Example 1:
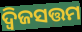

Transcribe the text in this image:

ଦ୍ୱିଜସତ୍ତମ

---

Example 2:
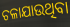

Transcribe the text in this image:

ଚଳାଯାଉଥିବା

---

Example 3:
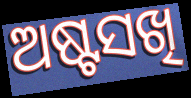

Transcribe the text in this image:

ଅଷ୍ଟସଖି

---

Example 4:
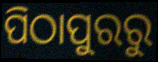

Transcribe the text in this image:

ପିଠାପୁରରୁ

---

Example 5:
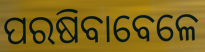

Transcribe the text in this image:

ପରଷିବାବେଳେ